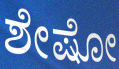
ಶೇಷೋ